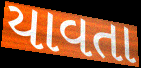
યાવતા